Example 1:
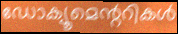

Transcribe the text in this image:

ഡോക്യൂമെന്ററികൾ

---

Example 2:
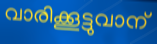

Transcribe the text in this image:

വാരിക്കൂട്ടുവാന്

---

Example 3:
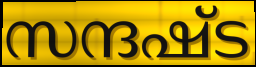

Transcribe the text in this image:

സന്ദഷ്ട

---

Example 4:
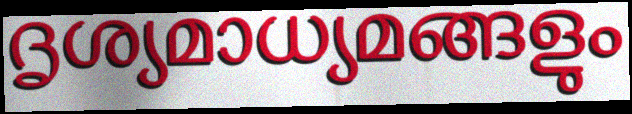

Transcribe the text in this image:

ദൃശ്യമാധ്യമങ്ങളും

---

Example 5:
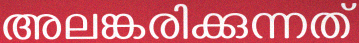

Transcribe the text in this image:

അലങ്കരിക്കുന്നത്